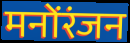
मनोंरंजन